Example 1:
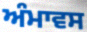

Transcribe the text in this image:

ਅੰਮਾਵਸ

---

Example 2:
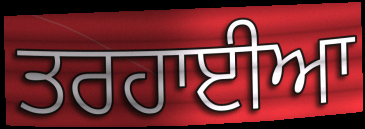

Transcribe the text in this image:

ਤਰਹਾਈਆ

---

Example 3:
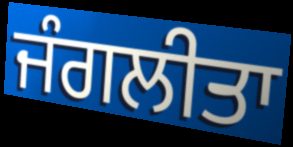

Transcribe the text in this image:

ਜੰਗਲੀਤਾ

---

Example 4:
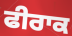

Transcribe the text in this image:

ਫੀਰਾਕ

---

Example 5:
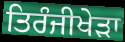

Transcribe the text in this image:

ਤਿਰੰਜੀਖੇੜਾ